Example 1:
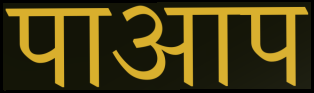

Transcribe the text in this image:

पाआप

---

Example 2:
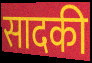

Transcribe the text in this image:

सादकी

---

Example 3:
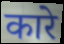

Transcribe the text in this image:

कारे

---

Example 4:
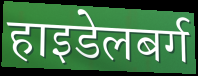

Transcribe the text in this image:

हाइडेलबर्ग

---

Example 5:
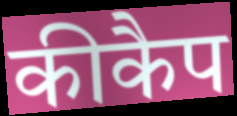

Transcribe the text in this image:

कीकैप